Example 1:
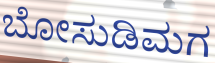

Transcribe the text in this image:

ಬೋಸುಡಿಮಗ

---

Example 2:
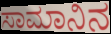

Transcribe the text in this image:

ಸಾಮಾನಿನ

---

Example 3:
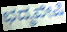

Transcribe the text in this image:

ಛದ್ಮವೇಷಿ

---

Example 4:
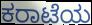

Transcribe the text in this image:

ಕರಾಟೆಯ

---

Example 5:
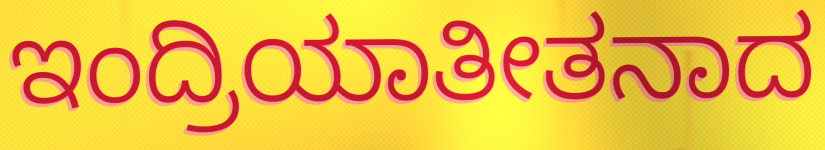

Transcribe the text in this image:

ಇಂದ್ರಿಯಾತೀತನಾದ